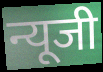
न्यूजी